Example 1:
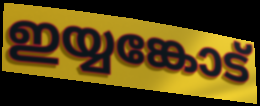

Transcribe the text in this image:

ഇയ്യങ്കോട്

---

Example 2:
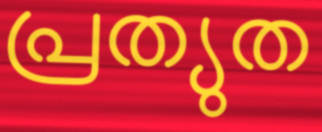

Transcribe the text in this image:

പ്രത്യുത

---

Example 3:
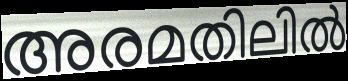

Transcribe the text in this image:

അരമതിലിൽ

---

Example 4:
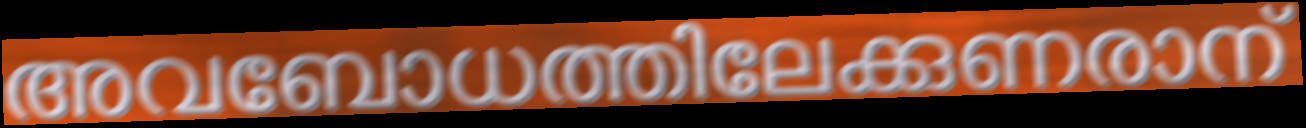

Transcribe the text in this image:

അവബോധത്തിലേക്കുണരാന്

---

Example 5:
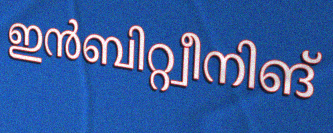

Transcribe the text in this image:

ഇൻബിറ്റ്വീനിങ്